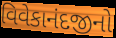
વિવેકાનંદજીનો